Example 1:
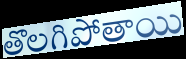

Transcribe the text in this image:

తొలగిపోతాయి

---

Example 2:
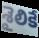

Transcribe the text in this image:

శైలికే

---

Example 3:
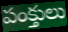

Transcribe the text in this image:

పంక్తులు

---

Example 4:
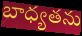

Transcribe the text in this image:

బాధ్యతను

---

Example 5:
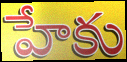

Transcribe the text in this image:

హేకు